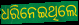
ଧରିନେଇଥିଲେ